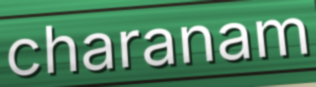
charanam